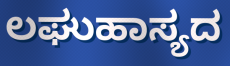
ಲಘುಹಾಸ್ಯದ